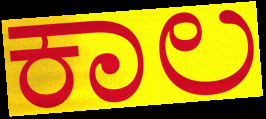
ಕಾಲ